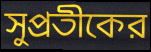
সুপ্রতীকের